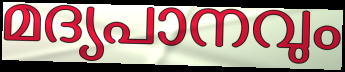
മദ്യപാനവും